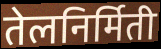
तेलनिर्मिती